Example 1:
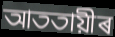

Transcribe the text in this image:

আততায়ীৰ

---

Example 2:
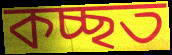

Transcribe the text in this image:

কচ্ছত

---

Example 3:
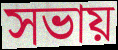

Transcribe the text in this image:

সভায়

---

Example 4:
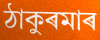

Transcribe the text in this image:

ঠাকুৰমাৰ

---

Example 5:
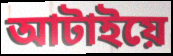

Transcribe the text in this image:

আটাইয়ে